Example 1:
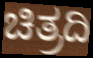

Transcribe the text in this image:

ಚಿತ್ರದಿ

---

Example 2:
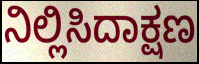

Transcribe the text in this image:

ನಿಲ್ಲಿಸಿದಾಕ್ಷಣ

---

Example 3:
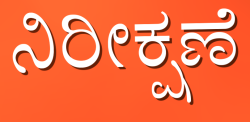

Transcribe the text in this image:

ನಿರೀಕ್ಷಣೆ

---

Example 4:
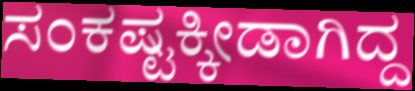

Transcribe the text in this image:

ಸಂಕಷ್ಟಕ್ಕೀಡಾಗಿದ್ದ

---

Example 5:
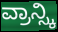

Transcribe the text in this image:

ವ್ರಾನ್ಸ್ಕಿ